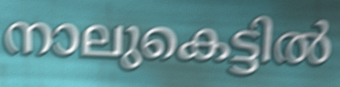
നാലുകെട്ടിൽ